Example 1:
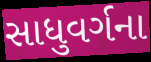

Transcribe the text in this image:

સાધુવર્ગના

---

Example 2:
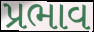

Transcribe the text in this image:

પ્રભાવ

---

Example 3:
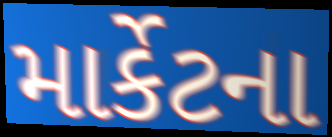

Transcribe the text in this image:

માર્કેટના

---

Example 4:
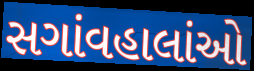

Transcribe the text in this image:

સગાંવહાલાંઓ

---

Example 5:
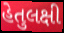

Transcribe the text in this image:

હેતુલક્ષી